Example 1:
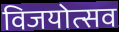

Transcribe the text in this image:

विजयोत्सव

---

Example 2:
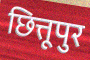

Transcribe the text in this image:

छित्तूपुर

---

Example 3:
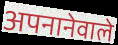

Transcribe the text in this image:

अपनानेवाले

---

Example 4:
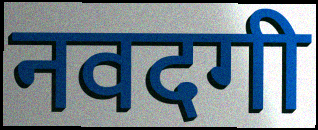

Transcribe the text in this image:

नवदगी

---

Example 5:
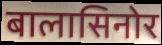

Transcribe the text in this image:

बालासिनोर